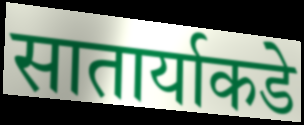
सातार्याकडे